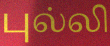
புல்லி